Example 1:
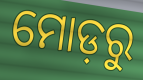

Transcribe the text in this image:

ମୋଡ଼ରୁ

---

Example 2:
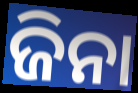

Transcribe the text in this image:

ଜିନା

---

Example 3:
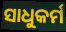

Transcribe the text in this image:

ସାଧୁକର୍ମ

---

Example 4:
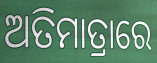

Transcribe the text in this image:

ଅତିମାତ୍ରାରେ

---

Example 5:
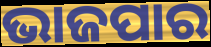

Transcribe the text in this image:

ଭାଜପାର